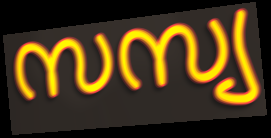
സസ്യ